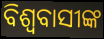
ବିଶ୍ଵବାସୀଙ୍କ